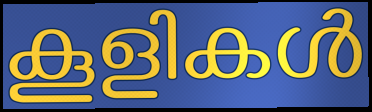
കൂളികൾ